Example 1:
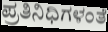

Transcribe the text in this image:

ಪ್ರತಿನಿಧಿಗಳಂತೆ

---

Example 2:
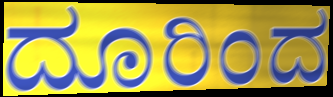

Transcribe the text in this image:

ದೂರಿಂದ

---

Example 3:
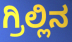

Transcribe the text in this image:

ಗ್ರಿಲ್ಲಿನ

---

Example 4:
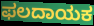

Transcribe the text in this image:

ಫಲದಾಯಕ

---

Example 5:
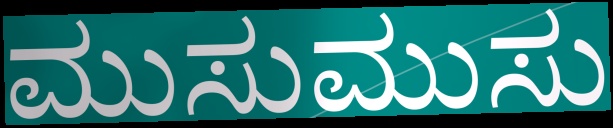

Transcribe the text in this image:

ಮುಸುಮುಸು